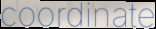
coordinate